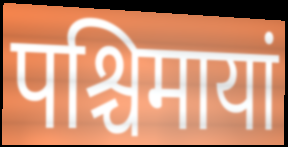
पश्चिमायां